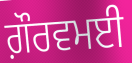
ਗ਼ੌਰਵਮਈ